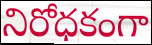
నిరోధకంగా